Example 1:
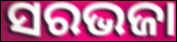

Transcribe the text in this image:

ସରଭଜା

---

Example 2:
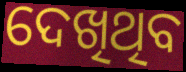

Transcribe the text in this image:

ଦେଖିଥିବ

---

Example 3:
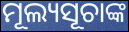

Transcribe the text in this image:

ମୂଲ୍ୟସୂଚାଙ୍କ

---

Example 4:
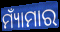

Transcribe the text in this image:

ମ୍ୟାଁମାର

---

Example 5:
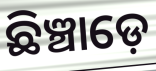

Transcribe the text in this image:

ଛିଞ୍ଚାଡ଼େ